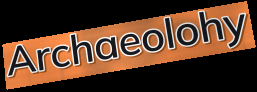
Archaeolohy